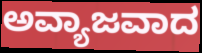
ಅವ್ಯಾಜವಾದ